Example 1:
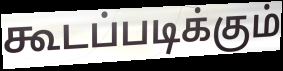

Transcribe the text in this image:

கூடப்படிக்கும்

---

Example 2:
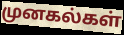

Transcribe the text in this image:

முனகல்கள்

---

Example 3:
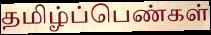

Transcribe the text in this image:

தமிழ்ப்பெண்கள்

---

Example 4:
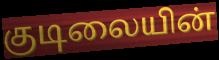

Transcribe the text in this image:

குடிலையின்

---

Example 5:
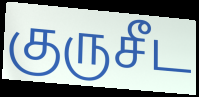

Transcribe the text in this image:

குருசீட